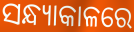
ସନ୍ଧ୍ୟାକାଳରେ